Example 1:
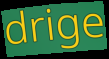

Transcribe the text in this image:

drige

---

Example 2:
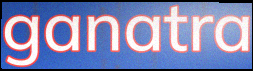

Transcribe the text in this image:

ganatra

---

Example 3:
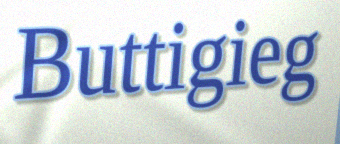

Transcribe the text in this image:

Buttigieg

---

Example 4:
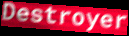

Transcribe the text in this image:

Destroyer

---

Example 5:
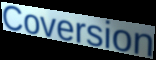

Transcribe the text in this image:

Coversion